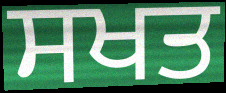
ਸਖਤ